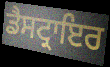
ਡੈਸਟ੍ਰਾਇਰ